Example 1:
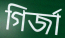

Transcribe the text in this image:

গির্জা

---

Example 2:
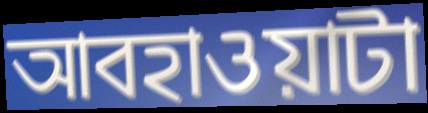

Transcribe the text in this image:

আবহাওয়াটা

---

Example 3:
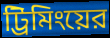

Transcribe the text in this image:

ট্রিমিংয়ের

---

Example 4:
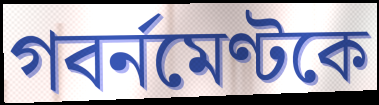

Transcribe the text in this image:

গবর্নমেণ্টকে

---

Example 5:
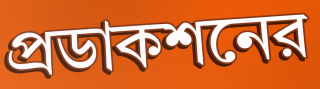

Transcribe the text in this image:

প্রডাকশনের